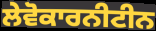
ਲੇਵੋਕਾਰਨੀਟੀਨ